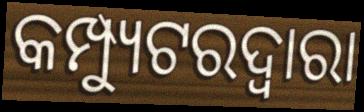
କମ୍ପ୍ୟୁଟରଦ୍ୱାରା